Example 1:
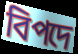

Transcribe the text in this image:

বিপদে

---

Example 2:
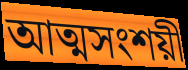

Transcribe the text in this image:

আত্মসংশয়ী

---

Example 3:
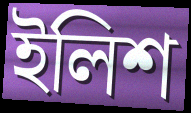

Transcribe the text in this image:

ইলিশ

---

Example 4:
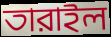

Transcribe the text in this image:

তারাইল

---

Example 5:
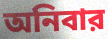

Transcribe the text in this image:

অনিবার